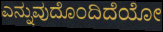
ಎನ್ನುವುದೊಂದಿದೆಯೋ